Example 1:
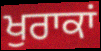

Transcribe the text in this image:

ਖੁਰਾਕਾਂ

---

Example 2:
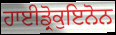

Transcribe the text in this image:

ਹਾਈਡ੍ਰੋਕੁਇਨੋਨ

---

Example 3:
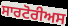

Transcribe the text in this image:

ਸਾਰਟੋਰੀਅਸ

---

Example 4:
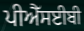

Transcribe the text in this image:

ਪੀਐੱਸਈਬੀ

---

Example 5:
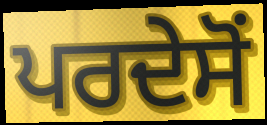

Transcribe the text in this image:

ਪਰਦੇਸੋਂ